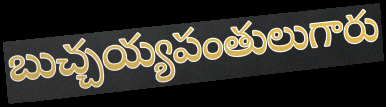
బుచ్చయ్యపంతులుగారు